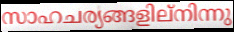
സാഹചര്യങ്ങളില്നിന്നു